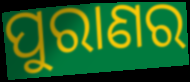
ପୁରାଣର